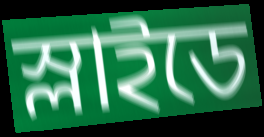
স্লাইডে